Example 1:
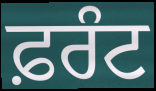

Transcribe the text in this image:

ਫ਼ਰੰਟ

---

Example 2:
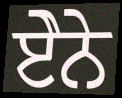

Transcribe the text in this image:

ਏੇਨੇ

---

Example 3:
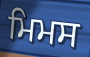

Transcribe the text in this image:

ਮਿਮਸ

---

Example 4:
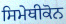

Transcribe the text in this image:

ਸਿਮੇਥੀਕੋਨ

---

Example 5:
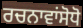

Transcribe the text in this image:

ਰਚਨਾਵਾਂਸੋਧੋ